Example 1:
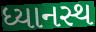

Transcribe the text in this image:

ધ્યાનસ્થ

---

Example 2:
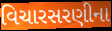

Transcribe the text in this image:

વિચારસરણીના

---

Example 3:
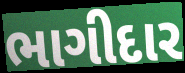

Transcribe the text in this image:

ભાગીદાર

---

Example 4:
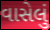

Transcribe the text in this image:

વાસેલું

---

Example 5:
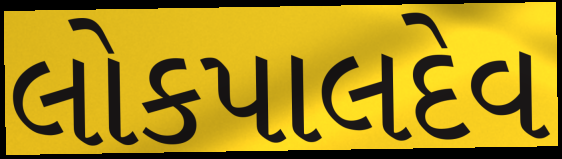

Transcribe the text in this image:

લોકપાલદેવ